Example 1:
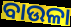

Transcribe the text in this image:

ବାଉଳା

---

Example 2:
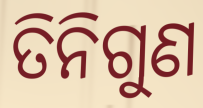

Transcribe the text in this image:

ତିନିଗୁଣ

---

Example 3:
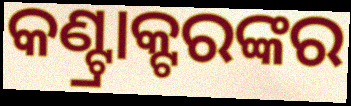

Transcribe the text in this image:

କଣ୍ଟ୍ରାକ୍ଟରଙ୍କର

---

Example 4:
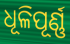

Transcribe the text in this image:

ଧୂଳିପୂର୍ଣ୍ଣ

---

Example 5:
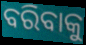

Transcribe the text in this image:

ବରିବାକୁ